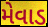
મેવાડ